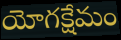
యోగక్షేమం